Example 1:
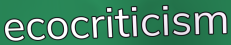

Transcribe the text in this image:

ecocriticism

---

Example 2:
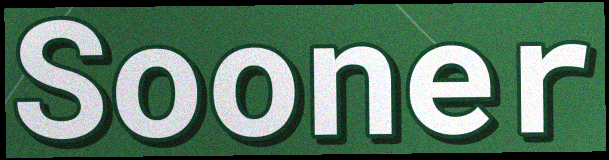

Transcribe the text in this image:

Sooner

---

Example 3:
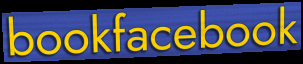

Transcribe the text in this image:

bookfacebook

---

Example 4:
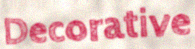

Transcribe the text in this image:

Decorative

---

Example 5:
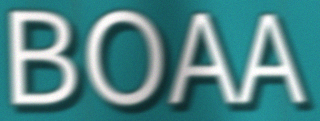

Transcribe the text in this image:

BOAA